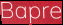
Bapre